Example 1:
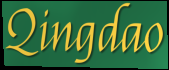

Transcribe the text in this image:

Qingdao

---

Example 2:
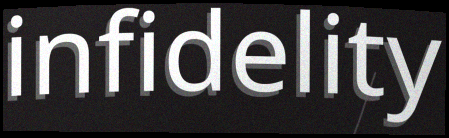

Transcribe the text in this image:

infidelity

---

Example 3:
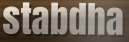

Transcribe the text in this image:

stabdha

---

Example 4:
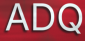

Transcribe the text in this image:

ADQ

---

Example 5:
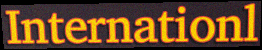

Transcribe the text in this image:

Internationl